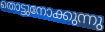
തൊട്ടുനോക്കുന്നു